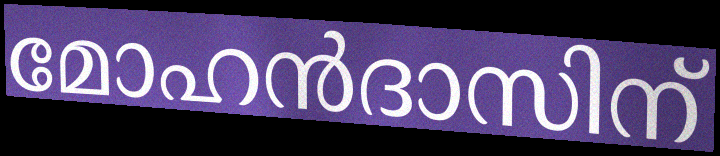
മോഹൻദാസിന്